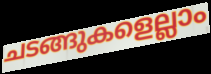
ചടങ്ങുകളെല്ലാം